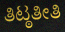
ತಿಟ್ಠತೀತಿ